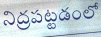
నిద్రపట్టడంలో